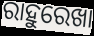
ରାହୁରେଖା